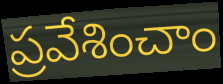
ప్రవేశించాం